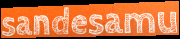
sandesamu